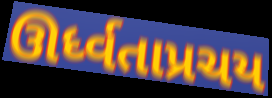
ઊર્ધ્વતાપ્રચય